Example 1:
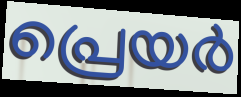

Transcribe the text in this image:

പ്രെയർ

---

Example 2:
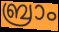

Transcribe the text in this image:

ബ്രാം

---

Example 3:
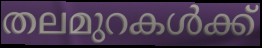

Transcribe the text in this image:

തലമുറകൾക്ക്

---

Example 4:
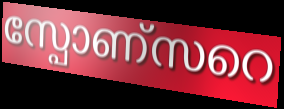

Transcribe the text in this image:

സ്പോണ്സറെ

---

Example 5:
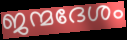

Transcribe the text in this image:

ജന്മദേശം